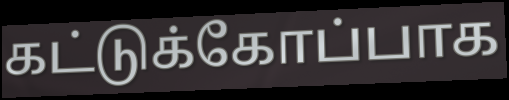
கட்டுக்கோப்பாக